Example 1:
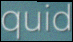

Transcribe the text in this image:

quid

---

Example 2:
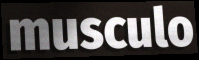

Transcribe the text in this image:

musculo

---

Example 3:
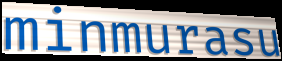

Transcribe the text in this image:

minmurasu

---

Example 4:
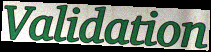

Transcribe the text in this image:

Validation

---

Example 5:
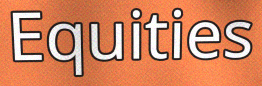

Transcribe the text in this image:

Equities